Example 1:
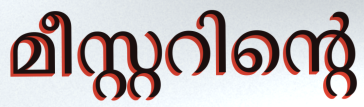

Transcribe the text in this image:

മീസ്റ്ററിന്റെ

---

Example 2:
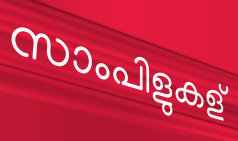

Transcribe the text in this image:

സാംപിളുകള്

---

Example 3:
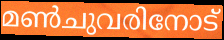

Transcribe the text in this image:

മൺചുവരിനോട്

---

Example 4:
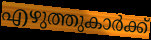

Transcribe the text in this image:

എഴുത്തുകാർക്ക്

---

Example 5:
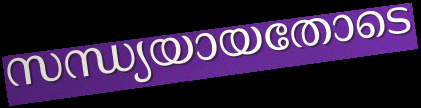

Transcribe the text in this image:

സന്ധ്യയായതോടെ